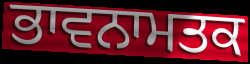
ਭਾਵਨਾਮਤਕ